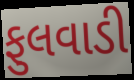
ફુલવાડી